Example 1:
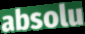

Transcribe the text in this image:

absolu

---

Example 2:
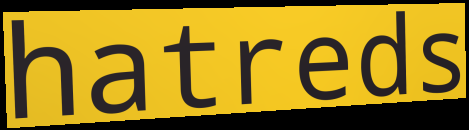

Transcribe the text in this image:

hatreds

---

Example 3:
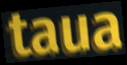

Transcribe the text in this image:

taua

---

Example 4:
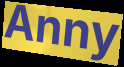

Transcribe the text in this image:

Anny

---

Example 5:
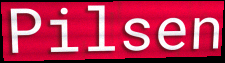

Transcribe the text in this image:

Pilsen